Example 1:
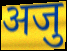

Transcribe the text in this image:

अजु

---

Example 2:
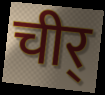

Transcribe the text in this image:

चीर्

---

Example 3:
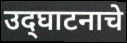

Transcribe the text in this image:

उद्‌घाटनाचे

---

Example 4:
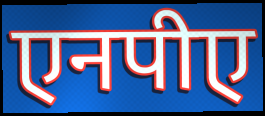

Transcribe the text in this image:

एनपीए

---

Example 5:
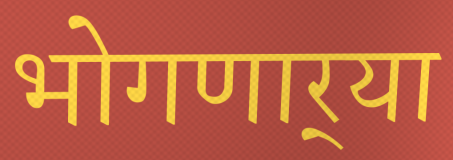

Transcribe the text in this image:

भोगणार्या